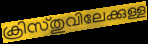
ക്രിസ്തുവിലേക്കുള്ള